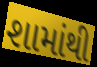
શામાંથી